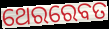
ଥେରରେବତ